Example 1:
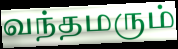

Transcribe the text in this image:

வந்தமரும்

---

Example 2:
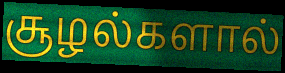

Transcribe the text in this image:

சூழல்களால்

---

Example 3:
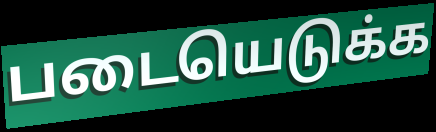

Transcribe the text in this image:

படையெடுக்க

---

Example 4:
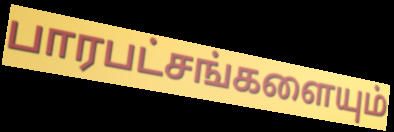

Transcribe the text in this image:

பாரபட்சங்களையும்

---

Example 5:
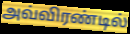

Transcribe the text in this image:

அவ்விரண்டில்